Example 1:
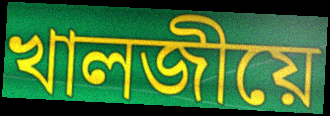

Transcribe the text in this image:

খালজীয়ে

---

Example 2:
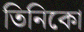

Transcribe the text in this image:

তিনিকো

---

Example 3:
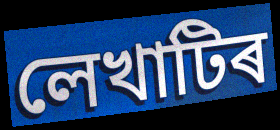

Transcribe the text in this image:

লেখাটিৰ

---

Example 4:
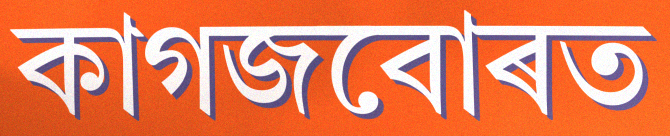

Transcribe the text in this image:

কাগজবোৰত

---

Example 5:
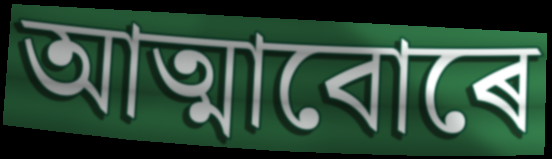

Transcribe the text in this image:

আত্মাবোৰে